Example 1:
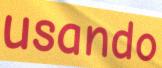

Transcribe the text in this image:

usando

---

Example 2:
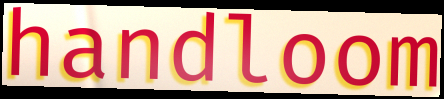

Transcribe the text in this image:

handloom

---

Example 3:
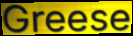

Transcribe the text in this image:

Greese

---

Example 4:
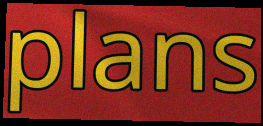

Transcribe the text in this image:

plans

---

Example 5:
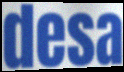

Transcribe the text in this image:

desa